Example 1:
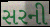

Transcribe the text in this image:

સરની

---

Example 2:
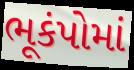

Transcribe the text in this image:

ભૂકંપોમાં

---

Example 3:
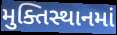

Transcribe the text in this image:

મુક્તિસ્થાનમાં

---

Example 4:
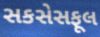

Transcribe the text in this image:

સકસેસફૂલ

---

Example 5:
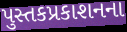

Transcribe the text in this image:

પુસ્તકપ્રકાશનના